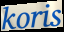
koris